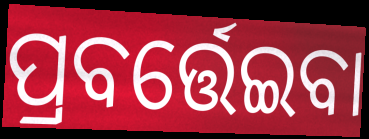
ପ୍ରବର୍ତ୍ତେଇବା